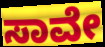
ಸಾವೇ